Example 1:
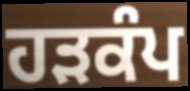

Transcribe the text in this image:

ਹੜਕੰਪ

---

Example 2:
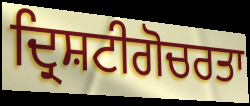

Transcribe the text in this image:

ਦ੍ਰਿਸ਼ਟੀਗੋਚਰਤਾ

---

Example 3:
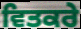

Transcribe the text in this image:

ਵਿਤਕਰੇ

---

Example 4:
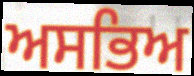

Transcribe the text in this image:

ਅਸਭਿਅ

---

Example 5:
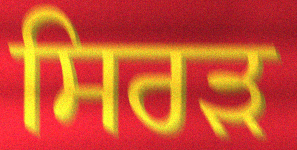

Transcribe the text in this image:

ਸਿਰਡ਼